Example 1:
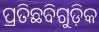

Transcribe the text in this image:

ପ୍ରତିଛବିଗୁଡ଼ିକ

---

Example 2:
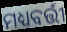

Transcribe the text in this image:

ମଧ୍ୟବର୍ତ୍ତୀ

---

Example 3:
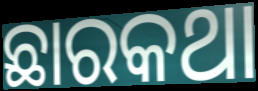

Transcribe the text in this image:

ଛାରକଥା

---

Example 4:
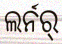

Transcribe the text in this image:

ଲର୍ନର୍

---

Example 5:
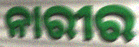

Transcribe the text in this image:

ନାରୀର